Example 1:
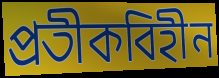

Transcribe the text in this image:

প্রতীকবিহীন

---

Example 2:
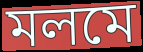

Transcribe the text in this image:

মলমে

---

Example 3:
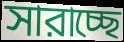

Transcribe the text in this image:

সারাচ্ছে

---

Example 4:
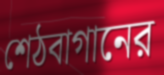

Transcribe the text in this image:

শেঠবাগানের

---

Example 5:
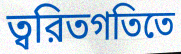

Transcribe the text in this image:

ত্বরিতগতিতে